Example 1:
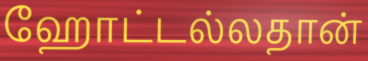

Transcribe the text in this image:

ஹோட்டல்லதான்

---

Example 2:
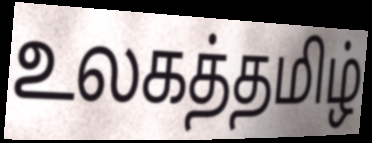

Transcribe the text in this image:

உலகத்தமிழ்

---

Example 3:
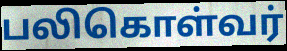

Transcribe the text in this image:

பலிகொள்வர்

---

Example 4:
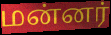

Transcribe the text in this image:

மன்னர்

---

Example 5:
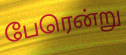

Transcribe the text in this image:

பேரென்று